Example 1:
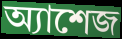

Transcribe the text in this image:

অ্যাশেজ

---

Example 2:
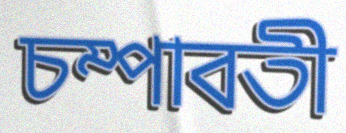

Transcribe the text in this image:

চম্পাবতী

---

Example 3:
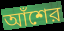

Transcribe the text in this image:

আঁশের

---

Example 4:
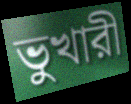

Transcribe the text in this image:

ভুখারী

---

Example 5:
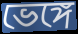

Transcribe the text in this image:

ভেঙ্গে